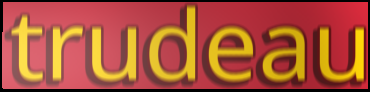
trudeau